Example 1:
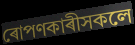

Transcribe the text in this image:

ৰোপণকাৰীসকলে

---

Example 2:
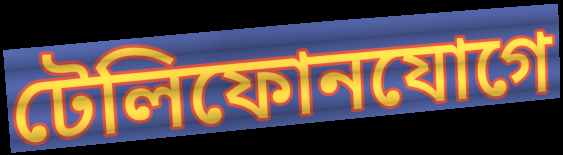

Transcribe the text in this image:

টেলিফোনযোগে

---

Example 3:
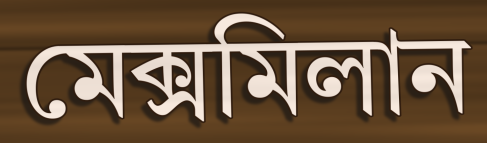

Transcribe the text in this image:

মেক্সমিলান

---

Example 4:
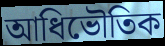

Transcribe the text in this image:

আধিভৌতিক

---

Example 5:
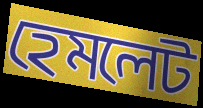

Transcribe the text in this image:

হেমলেট